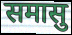
समासु